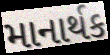
માનાર્થક